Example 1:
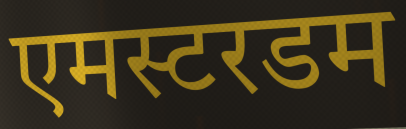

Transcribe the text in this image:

एमस्टरडम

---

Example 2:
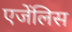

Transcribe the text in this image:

एजेंलिस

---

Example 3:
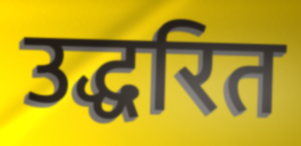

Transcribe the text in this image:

उद्धरित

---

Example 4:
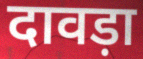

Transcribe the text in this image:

दावड़ा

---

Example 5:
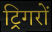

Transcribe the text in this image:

ट्रिगरों